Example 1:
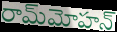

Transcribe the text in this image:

రామ్‌మోహన్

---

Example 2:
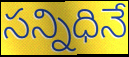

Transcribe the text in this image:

సన్నిధినే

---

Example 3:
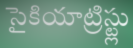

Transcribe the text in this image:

సైకియాట్రిస్ట్లు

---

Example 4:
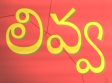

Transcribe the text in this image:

లివ్వ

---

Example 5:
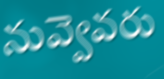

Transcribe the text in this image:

నువ్వెవరు